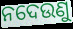
ନଦେଉଣୁ